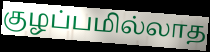
குழப்பமில்லாத